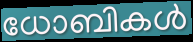
ധോബികൾ